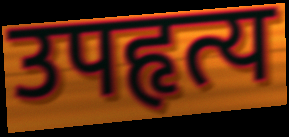
उपहृत्य